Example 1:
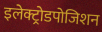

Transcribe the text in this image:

इलेक्ट्रोडपोजिशन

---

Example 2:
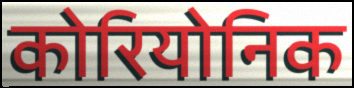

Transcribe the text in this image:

कोरियोनिक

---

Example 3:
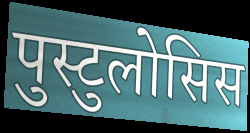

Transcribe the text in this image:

पुस्टुलोसिस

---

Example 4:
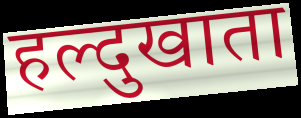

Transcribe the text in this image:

हल्दुखाता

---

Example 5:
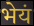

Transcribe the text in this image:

भेयं